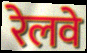
रेलवे